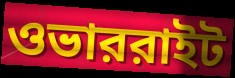
ওভাররাইট